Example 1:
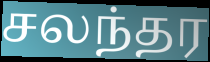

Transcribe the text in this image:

சலந்தர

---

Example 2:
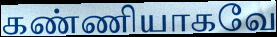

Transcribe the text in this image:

கண்ணியாகவே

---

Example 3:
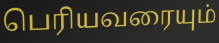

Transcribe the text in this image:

பெரியவரையும்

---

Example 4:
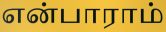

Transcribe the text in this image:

என்பாராம்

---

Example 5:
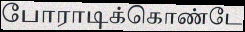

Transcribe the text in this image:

போராடிக்கொண்டே